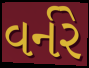
વર્નરે